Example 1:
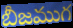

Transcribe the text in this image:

బీజముగ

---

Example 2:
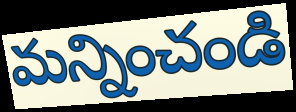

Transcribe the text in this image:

మన్నించండి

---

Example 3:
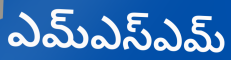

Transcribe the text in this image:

ఎమ్ఎస్ఎమ్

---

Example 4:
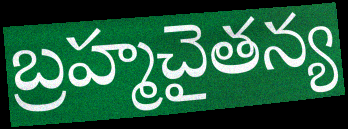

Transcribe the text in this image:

బ్రహ్మచైతన్య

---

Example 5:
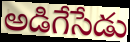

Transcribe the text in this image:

అడిగేసేడు